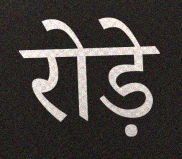
रोड़े